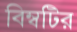
বিম্বটির